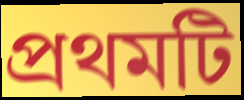
প্ৰথমটি